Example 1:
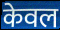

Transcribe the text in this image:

केवल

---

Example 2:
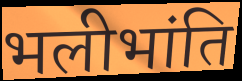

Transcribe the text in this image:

भलीभांति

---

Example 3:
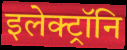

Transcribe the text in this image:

इलेक्ट्रॉनि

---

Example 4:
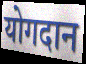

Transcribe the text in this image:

योगदान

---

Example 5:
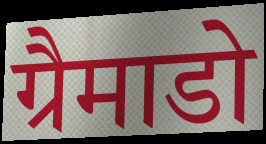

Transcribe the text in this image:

ग्रैमाडो